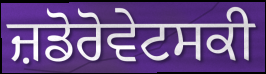
ਜ਼ਡੋਰੋਵੇਟਸਕੀ